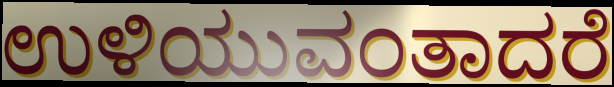
ಉಳಿಯುವಂತಾದರೆ